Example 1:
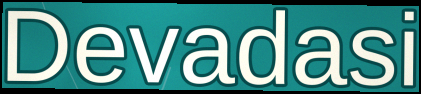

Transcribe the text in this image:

Devadasi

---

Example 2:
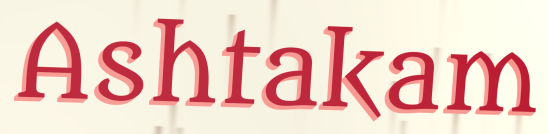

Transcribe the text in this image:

Ashtakam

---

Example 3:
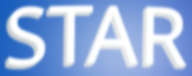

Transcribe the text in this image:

STAR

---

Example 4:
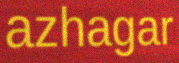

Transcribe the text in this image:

azhagar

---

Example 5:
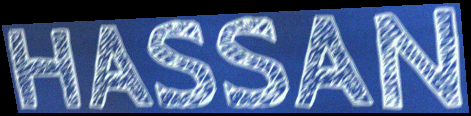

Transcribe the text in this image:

HASSAN